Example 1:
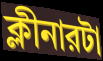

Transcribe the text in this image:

ক্লীনারটা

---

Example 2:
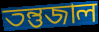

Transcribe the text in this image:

তন্তুজাল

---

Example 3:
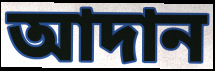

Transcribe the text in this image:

আদান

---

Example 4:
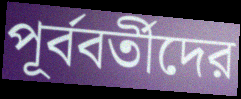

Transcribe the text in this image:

পূর্ববর্তীদের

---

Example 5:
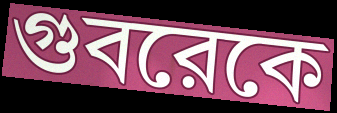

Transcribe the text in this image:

গুবরেকে